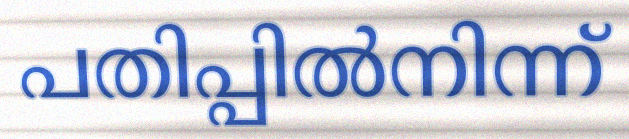
പതിപ്പിൽനിന്ന്